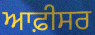
ਆਫ਼ੀਸਰ